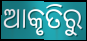
ଆକୃତିରୁ